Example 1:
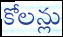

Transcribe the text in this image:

కోలన్లు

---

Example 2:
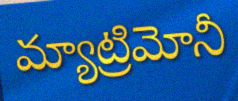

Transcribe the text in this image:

మ్యాట్రిమోనీ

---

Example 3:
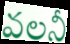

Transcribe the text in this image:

వలనీ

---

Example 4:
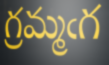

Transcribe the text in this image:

గ్రమ్మఁగ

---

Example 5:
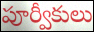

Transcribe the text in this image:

పూర్వీకులు